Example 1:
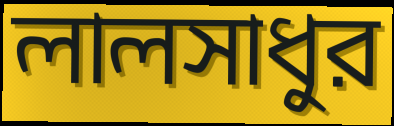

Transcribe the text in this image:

লালসাধুর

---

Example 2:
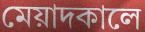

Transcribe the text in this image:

মেয়াদকালে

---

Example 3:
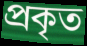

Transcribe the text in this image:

প্রকৃত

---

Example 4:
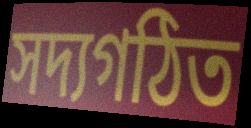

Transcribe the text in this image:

সদ্যগঠিত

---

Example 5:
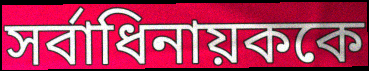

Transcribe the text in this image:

সর্বাধিনায়ককে